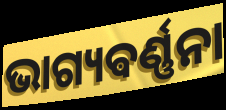
ଭାଗ୍ୟଵର୍ଣ୍ଣନା